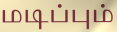
மடிப்பும்